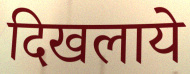
दिखलाये